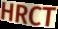
HRCT